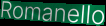
Romanello